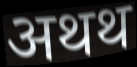
अथथ